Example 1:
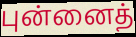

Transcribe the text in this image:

புன்னைத்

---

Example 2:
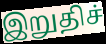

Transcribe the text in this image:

இறுதிச்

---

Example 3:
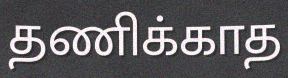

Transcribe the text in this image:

தணிக்காத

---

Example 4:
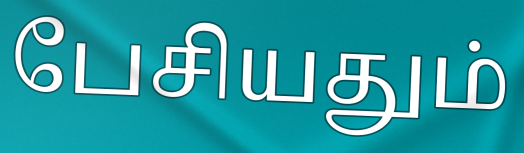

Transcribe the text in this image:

பேசியதும்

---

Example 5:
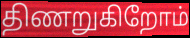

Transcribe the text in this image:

திணறுகிறோம்